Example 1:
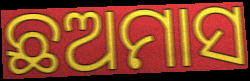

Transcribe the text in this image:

ଛଅମାସ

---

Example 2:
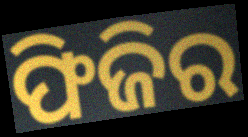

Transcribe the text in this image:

ଫିଜିର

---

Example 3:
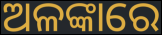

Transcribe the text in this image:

ଅଳଙ୍କାରେ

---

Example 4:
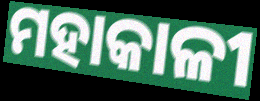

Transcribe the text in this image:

ମହାକାଳୀ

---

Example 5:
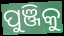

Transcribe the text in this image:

ପୁଞ୍ଜିକୁ